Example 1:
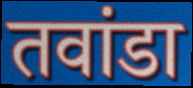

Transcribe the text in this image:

तवांडा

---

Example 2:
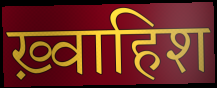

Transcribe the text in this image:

ख़्वाहिश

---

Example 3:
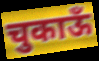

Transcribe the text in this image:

चुकाऊँ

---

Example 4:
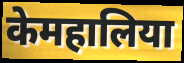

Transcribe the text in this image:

केमहालिया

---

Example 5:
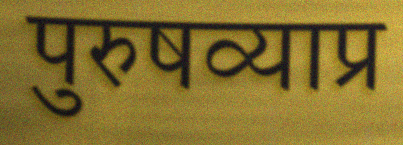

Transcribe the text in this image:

पुरुषव्याप्र